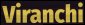
Viranchi